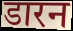
डारन